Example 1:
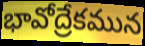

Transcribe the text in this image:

భావోద్రేకమున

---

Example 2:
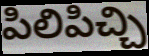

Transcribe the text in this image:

పిలిపిచ్చి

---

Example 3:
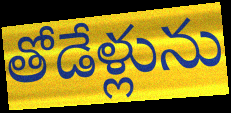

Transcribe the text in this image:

తోడేళ్లును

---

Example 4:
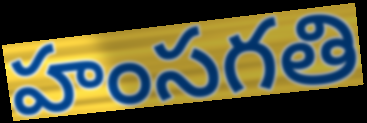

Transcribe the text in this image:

హంసగతి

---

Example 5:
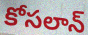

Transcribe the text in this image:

కోసలాన్